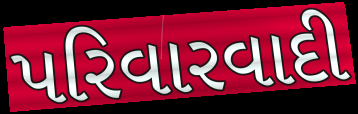
પરિવારવાદી